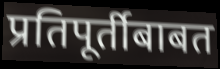
प्रतिपूर्तीबाबत